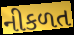
નીકળત